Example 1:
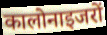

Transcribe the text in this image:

कालोनाइजरों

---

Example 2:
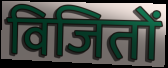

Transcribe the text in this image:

विजितों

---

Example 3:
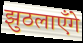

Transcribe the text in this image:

झुठलाएँगे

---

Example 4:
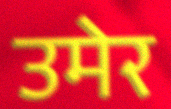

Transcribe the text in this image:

उमेर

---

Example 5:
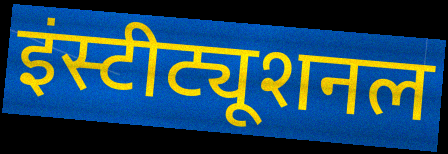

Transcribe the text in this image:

इंस्टीट्यूशनल